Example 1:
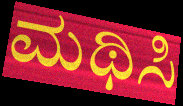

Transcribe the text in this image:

ಮಥಿಸಿ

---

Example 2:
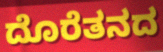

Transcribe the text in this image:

ದೊರೆತನದ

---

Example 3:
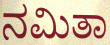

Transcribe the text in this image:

ನಮಿತಾ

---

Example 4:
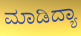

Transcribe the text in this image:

ಮಾಡಿದ್ಯಾ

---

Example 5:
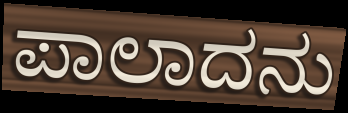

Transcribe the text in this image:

ಪಾಲಾದನು